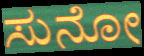
ಸುನೋ